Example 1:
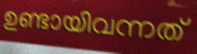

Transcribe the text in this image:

ഉണ്ടായിവന്നത്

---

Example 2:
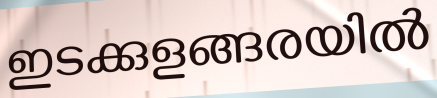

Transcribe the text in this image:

ഇടക്കുളങ്ങരയിൽ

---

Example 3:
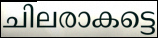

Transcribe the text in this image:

ചിലരാകട്ടെ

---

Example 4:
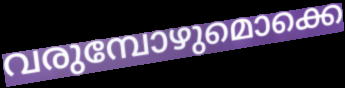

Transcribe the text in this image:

വരുമ്പോഴുമൊക്കെ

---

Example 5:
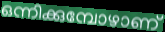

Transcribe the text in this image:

ഒന്നിക്കുമ്പോഴാണ്